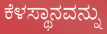
ಕೆಳಸ್ಥಾನವನ್ನು